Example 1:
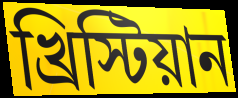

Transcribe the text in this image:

খ্রিস্টিয়ান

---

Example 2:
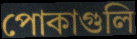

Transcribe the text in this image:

পোকাগুলি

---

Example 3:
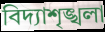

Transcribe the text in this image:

বিদ্যাশৃঙ্খলা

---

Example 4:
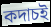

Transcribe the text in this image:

কদাচই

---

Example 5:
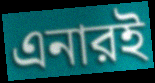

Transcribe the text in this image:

এনারই